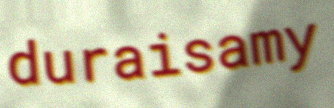
duraisamy